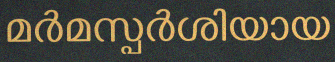
മർമസ്പർശിയായ